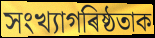
সংখ্যাগৰিষ্ঠতাক